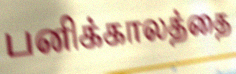
பனிக்காலத்தை